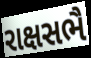
રાક્ષસભૈ